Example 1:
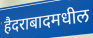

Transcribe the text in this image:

हैदराबादमधील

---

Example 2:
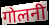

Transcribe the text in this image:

गोलनी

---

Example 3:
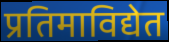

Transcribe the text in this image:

प्रतिमाविद्येत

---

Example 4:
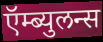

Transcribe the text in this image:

ऍम्ब्युलन्स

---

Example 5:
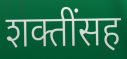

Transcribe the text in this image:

शक्तींसह